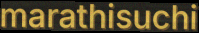
marathisuchi